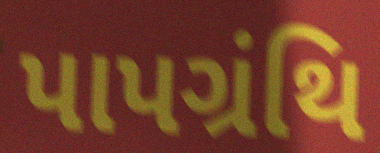
પાપગ્રંથિ